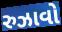
રુઝાવો